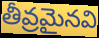
తీవ్రమైనవి